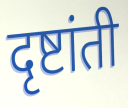
दृष्टांती